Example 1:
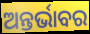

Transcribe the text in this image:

ଅନ୍ତର୍ଭାବର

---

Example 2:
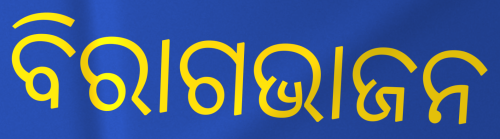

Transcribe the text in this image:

ବିରାଗଭାଜନ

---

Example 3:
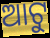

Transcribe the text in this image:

ଆଟୁ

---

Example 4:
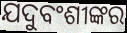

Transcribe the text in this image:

ଯଦୁବଂଶୀଙ୍କର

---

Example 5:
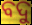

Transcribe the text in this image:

ବଦୁ